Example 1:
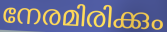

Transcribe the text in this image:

നേരമിരിക്കും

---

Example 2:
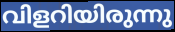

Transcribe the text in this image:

വിളറിയിരുന്നു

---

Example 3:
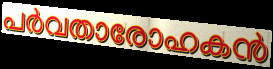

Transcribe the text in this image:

പർവതാരോഹകൻ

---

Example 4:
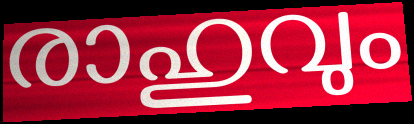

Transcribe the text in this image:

രാഹുവും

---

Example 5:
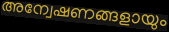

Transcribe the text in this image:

അന്വേഷണങ്ങളായും